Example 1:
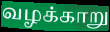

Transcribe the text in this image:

வழக்காறு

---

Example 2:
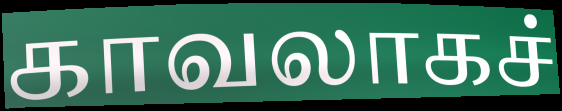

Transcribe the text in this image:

காவலாகச்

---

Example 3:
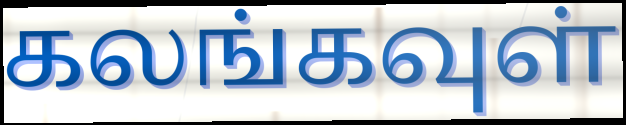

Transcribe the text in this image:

கலங்கவுள்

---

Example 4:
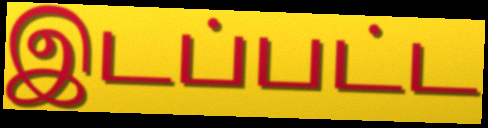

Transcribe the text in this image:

இடப்பட்ட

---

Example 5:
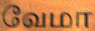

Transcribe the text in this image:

வேமா